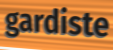
gardiste